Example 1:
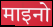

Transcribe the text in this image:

माइनो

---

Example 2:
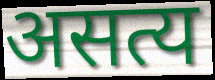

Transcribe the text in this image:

असत्य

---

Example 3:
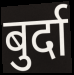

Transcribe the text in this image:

बुर्दा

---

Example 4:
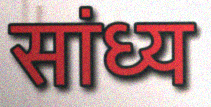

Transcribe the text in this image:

सांध्य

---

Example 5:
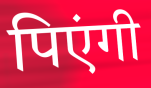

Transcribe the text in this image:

पिएंगी